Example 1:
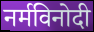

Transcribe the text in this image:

नर्मविनोदी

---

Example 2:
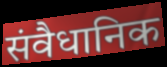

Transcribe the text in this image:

संवैधानिक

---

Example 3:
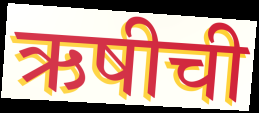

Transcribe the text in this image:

ऋषीची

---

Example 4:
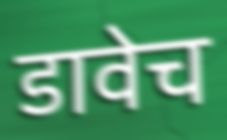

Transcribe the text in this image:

डावेच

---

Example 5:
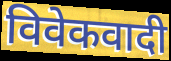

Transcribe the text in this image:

विवेकवादी